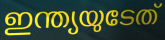
ഇന്ത്യയുടേത്